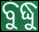
ବୁଦ୍ଧୁ